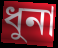
ধুনা